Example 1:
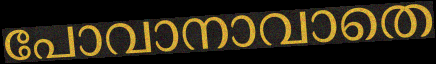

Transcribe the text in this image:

പോവാനാവാതെ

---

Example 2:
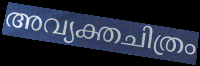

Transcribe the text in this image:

അവ്യക്തചിത്രം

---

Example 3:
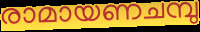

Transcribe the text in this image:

രാമായണചമ്പു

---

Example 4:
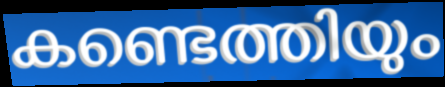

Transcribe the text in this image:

കണ്ടെത്തിയും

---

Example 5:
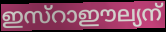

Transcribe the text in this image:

ഇസ്റാഈല്യന്